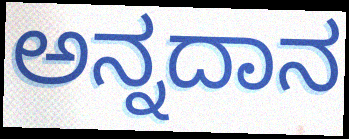
ಅನ್ನದಾನ